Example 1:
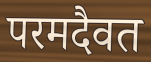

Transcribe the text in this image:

परमदैवत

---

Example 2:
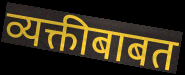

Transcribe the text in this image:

व्यक्तीबाबत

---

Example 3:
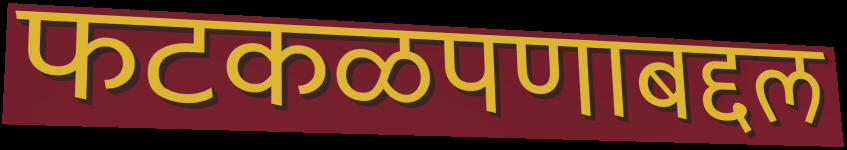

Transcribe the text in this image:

फटकळपणाबद्दल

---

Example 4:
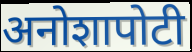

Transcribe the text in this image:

अनोशापोटी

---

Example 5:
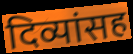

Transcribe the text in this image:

दिव्यांसह